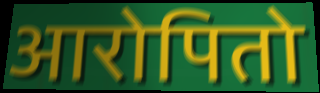
आरोपितो